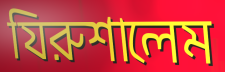
যিরুশালেম